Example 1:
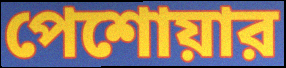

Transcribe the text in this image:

পেশোয়ার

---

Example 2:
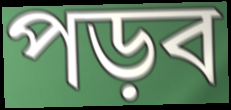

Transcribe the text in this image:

পড়ব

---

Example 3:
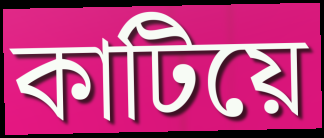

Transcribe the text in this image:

কাটিয়ে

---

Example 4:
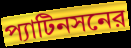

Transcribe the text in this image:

প্যাটিনসনের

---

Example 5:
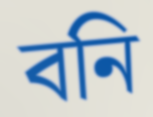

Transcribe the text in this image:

বনি